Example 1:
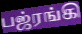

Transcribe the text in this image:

பஜ்ரங்கி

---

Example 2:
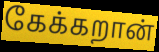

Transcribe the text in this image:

கேக்கறான்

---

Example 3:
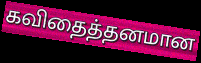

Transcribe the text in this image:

கவிதைத்தனமான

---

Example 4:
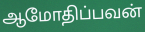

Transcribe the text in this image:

ஆமோதிப்பவன்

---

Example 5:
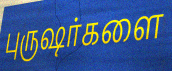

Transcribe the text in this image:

புருஷர்களை